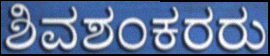
ಶಿವಶಂಕರರು